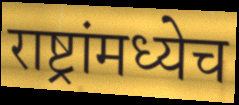
राष्ट्रांमध्येच